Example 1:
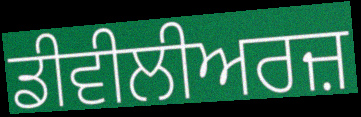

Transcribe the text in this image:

ਡੀਵੀਲੀਅਰਜ਼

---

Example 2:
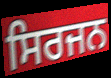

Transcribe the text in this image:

ਸਿਰਜਨ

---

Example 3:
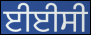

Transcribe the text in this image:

ਈਈਸੀ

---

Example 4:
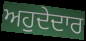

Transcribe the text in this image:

ਅਹੁਦੇਦਾਰ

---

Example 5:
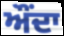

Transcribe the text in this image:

ਔਂਦਾ